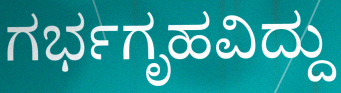
ಗರ್ಭಗೃಹವಿದ್ದು